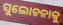
ସୁଲୋଚନାକୁ